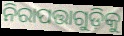
ନିରାପତ୍ତାଗୁଡ଼ିକୁ